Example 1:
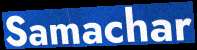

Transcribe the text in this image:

Samachar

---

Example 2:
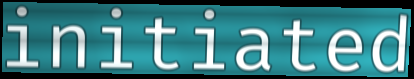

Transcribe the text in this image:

initiated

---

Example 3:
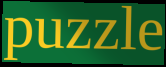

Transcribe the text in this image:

puzzle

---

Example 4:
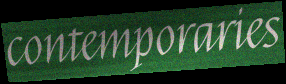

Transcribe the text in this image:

contemporaries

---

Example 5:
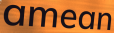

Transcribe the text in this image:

amean